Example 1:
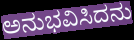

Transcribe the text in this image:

ಅನುಭವಿಸಿದನು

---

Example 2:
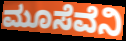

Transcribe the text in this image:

ಮೂಸೆವೆನಿ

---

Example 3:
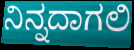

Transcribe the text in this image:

ನಿನ್ನದಾಗಲಿ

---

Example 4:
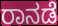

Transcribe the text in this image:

ರಾನಡೆ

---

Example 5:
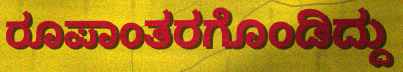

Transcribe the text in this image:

ರೂಪಾಂತರಗೊಂಡಿದ್ದು